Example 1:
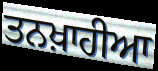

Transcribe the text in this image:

ਤਨਖ਼ਾਹੀਆ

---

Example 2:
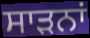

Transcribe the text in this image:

ਸਾੜਨਾਂ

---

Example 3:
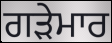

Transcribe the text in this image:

ਗੜੇਮਾਰ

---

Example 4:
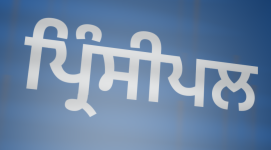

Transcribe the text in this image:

ਪ੍ਰਿੰਸੀਪਲ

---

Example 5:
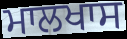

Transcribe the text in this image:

ਮਾਲਖਾਸ